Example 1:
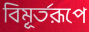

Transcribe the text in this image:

বিমূর্তরূপে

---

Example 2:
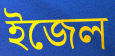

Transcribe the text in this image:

ইজেল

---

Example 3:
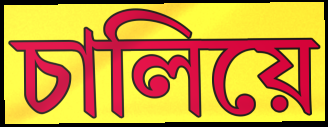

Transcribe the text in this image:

চালিয়ে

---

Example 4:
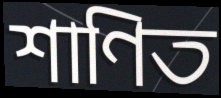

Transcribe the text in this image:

শাণিত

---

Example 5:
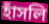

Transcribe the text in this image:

হাঁসলি